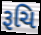
રૂચિ